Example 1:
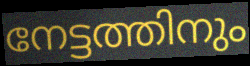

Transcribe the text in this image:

നേട്ടത്തിനും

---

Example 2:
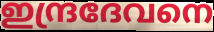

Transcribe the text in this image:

ഇന്ദ്രദേവനെ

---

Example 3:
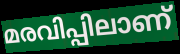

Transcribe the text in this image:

മരവിപ്പിലാണ്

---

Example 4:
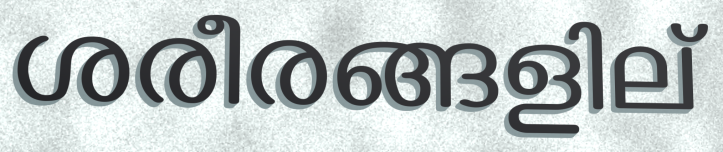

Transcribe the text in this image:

ശരീരങ്ങളില്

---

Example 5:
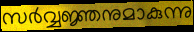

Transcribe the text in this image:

സർവ്വജ്ഞനുമാകുന്നു